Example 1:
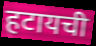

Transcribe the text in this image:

हटायची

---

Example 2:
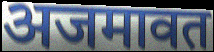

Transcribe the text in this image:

अजमावत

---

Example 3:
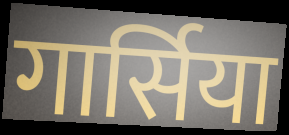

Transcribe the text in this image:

गार्सिया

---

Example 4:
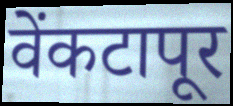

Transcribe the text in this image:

वेंकटापूर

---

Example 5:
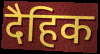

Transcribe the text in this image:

दैहिक